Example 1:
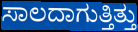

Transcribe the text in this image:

ಸಾಲದಾಗುತ್ತಿತ್ತು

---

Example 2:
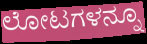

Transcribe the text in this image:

ಲೋಟಗಳನ್ನೂ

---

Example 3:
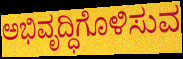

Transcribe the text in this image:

ಅಭಿವೃದ್ಧಿಗೊಳಿಸುವ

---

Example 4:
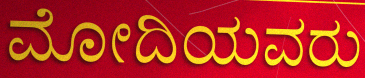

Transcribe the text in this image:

ಮೋದಿಯವರು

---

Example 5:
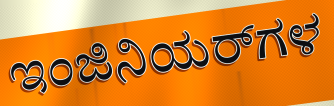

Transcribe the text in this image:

ಇಂಜಿನಿಯರ್‌ಗಳ